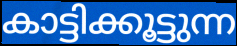
കാട്ടിക്കൂട്ടുന്ന